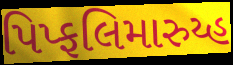
પિપ્ફલિમારુય્હ